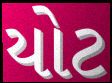
યોટ